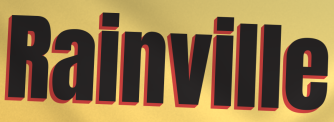
Rainville